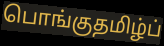
பொங்குதமிழ்ப்